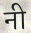
नी